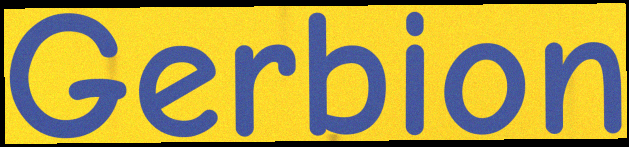
Gerbion